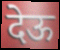
देऊ